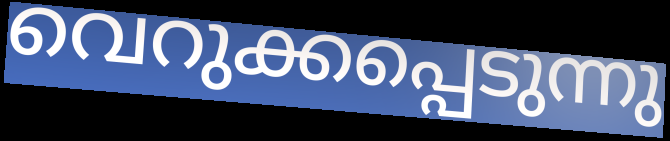
വെറുക്കപ്പെടുന്നു